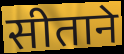
सीताने